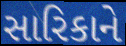
સારિકાને